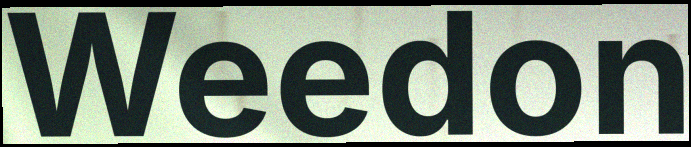
Weedon